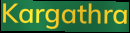
Kargathra